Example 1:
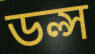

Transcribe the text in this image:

ডল্স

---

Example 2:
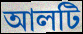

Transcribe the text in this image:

আলটি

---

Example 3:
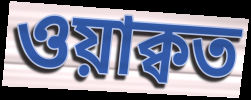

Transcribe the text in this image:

ওয়াক্বত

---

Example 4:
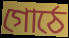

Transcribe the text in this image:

গোঠে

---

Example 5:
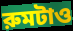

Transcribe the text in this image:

রুমটাও